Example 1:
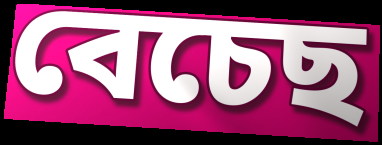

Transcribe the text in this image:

বেচেছ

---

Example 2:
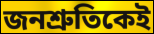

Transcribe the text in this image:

জনশ্রুতিকেই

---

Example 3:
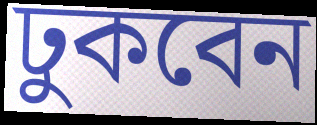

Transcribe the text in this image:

ঢুকবেন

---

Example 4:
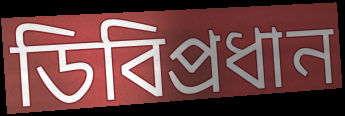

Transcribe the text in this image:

ডিবিপ্রধান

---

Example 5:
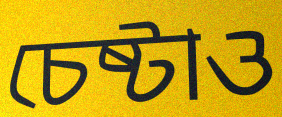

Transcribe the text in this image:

চেষ্টাও